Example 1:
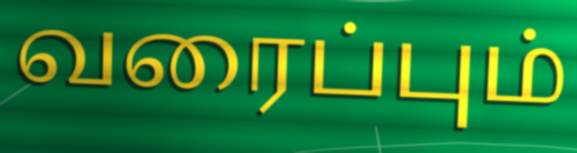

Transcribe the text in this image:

வரைப்பும்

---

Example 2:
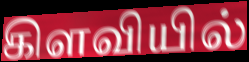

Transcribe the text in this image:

கிளவியில்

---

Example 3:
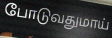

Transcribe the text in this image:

போடுவதுமாய்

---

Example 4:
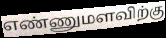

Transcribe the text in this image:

எண்ணுமளவிற்கு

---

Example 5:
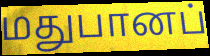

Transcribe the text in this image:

மதுபானப்